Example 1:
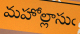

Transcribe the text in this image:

మహోల్లాసుఁ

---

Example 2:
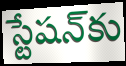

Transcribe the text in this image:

స్టేషన్‍కు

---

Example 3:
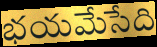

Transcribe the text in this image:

భయమేసేది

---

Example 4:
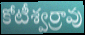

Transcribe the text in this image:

కోటీశ్వర్రావు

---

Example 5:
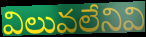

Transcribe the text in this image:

విలువలేనివి